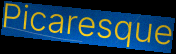
Picaresque